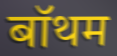
बॉथम